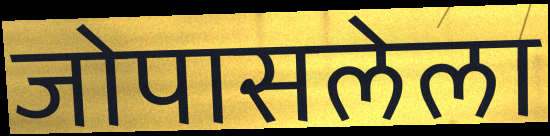
जोपासलेला